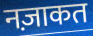
नज़ाकत